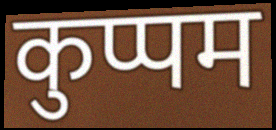
कुप्पम